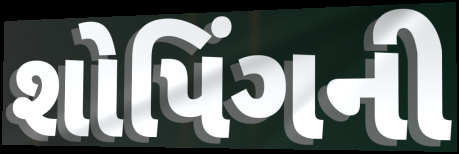
શોપિંગની